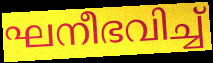
ഘനീഭവിച്ച്